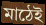
মাঠেই